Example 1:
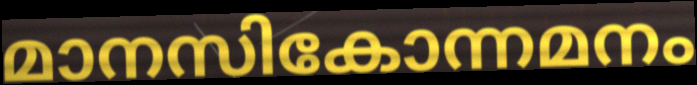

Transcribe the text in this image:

മാനസികോന്നമനം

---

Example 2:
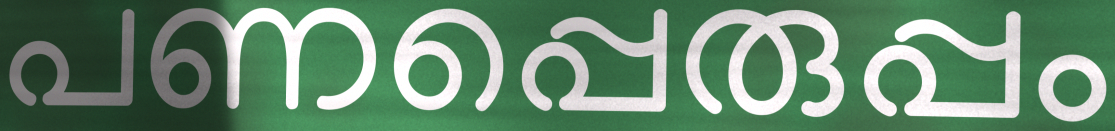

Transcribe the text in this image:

പണപ്പെരുപ്പം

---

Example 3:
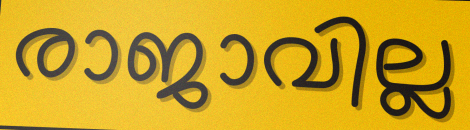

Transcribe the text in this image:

രാജാവില്ല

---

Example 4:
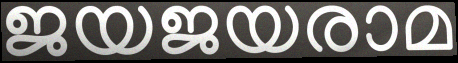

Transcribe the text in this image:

ജയജയരാമ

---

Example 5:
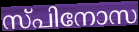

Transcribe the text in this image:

സ്പിനോസ